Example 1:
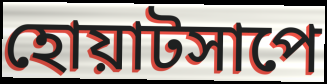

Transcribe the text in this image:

হোয়াটসাপে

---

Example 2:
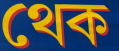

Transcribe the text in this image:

থেক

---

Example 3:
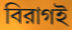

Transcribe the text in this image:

বিরাগই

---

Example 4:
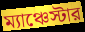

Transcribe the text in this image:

ম্যাঞ্চেস্টার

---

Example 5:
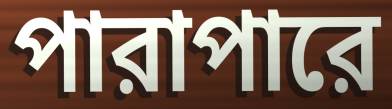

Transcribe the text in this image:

পারাপারে